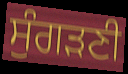
ਸੁੰਗੜਣੀ